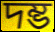
দম্ভ